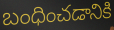
బంధించడానికి